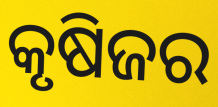
କୃଷିଜର